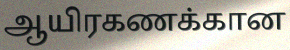
ஆயிரகணக்கான